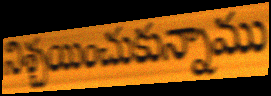
నిశ్చయించుకున్నాము